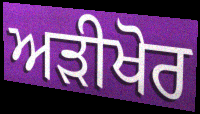
ਅੜੀਖੋਰ